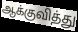
ஆக்குவித்து